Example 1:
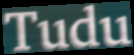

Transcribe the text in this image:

Tudu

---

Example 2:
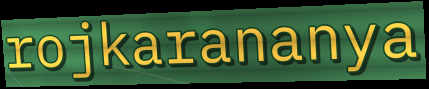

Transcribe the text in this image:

rojkarananya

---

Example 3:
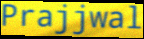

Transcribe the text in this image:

Prajjwal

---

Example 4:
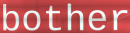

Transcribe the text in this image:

bother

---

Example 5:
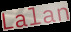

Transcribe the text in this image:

Lalan